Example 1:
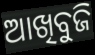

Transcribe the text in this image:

ଆଖିବୁଜି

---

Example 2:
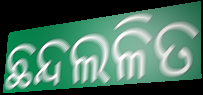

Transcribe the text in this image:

ଛନ୍ଦଲଳିତ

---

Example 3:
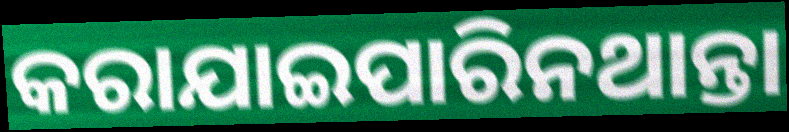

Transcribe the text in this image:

କରାଯାଇପାରିନଥାନ୍ତା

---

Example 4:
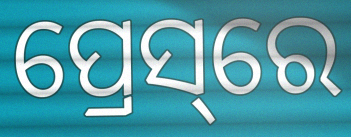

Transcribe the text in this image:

ପ୍ରେସ୍‌ରେ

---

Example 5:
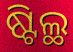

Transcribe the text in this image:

ଷ୍ଟିଲ୍ଥ